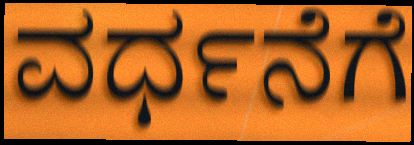
ವರ್ಧನೆಗೆ